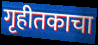
गृहीतकाचा